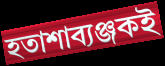
হতাশাব্যঞ্জকই